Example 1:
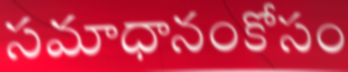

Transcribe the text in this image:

సమాధానంకోసం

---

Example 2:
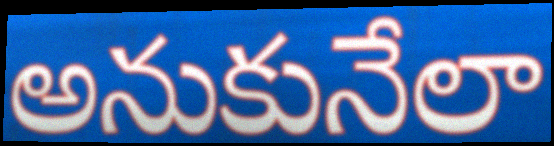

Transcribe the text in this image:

అనుకునేలా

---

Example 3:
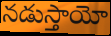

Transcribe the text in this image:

నడుస్తాయో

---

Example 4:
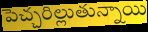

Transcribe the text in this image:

పెచ్చరిల్లుతున్నాయి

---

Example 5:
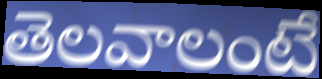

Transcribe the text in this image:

తెలవాలంటే